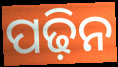
ପଢ଼ିନ